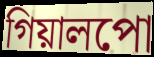
গিয়ালপো